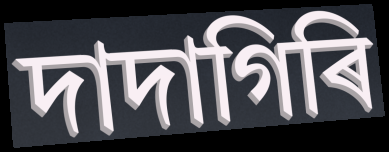
দাদাগিৰি